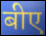
बीए